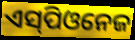
ଏସ୍‌ପିଓନେଜ